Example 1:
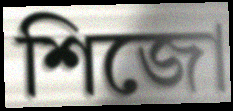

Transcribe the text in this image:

শিজো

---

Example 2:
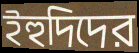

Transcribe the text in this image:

ইহুদিদের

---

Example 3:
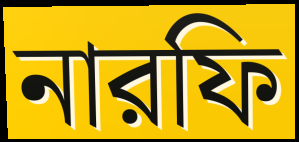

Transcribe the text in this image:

নারফি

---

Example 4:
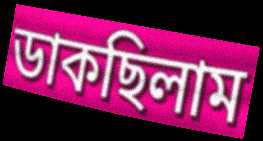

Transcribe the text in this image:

ডাকছিলাম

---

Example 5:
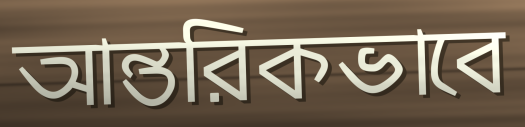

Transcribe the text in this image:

আন্তরিকভাবে